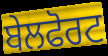
ਬੇਲਫੋਰਟ